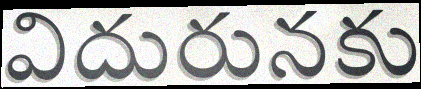
విదురునకు